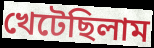
খেটেছিলাম